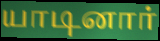
யாடினார்